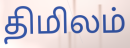
திமிலம்